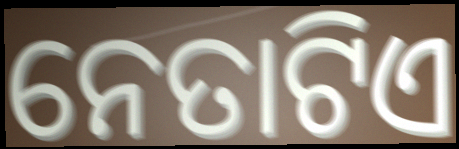
ନେତାଟିଏ